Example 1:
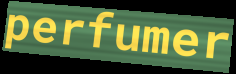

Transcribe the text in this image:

perfumer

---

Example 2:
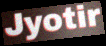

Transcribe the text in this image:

Jyotir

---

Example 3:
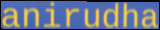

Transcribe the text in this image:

anirudha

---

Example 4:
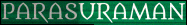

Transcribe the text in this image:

PARASURAMAN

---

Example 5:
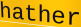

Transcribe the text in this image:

hather